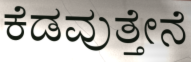
ಕೆಡವುತ್ತೇನೆ